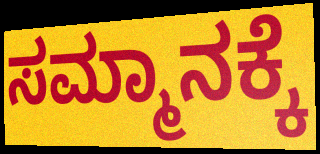
ಸಮ್ಮಾನಕ್ಕೆ